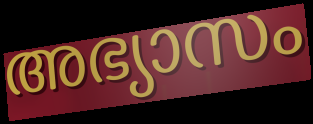
അഭ്യാസം